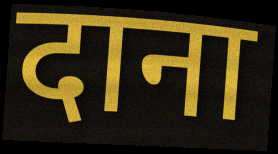
दाना